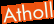
Atholl